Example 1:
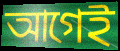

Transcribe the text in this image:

আগেই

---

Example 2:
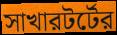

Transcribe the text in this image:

সাখারটর্টের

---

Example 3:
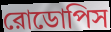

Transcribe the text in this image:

রোডোপিস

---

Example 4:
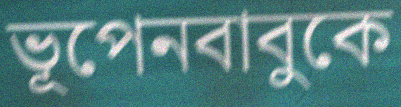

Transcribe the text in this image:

ভূপেনবাবুকে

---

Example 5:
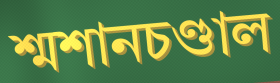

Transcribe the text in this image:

শ্মশানচণ্ডাল